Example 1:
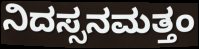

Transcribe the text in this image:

ನಿದಸ್ಸನಮತ್ತಂ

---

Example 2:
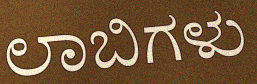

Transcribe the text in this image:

ಲಾಬಿಗಳು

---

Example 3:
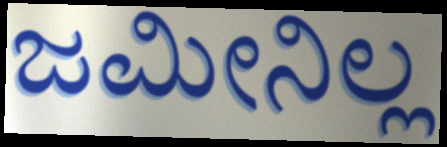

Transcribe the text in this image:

ಜಮೀನಿಲ್ಲ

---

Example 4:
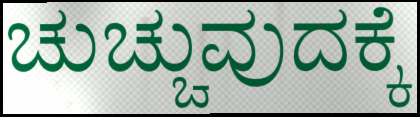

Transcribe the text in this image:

ಚುಚ್ಚುವುದಕ್ಕೆ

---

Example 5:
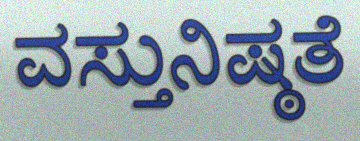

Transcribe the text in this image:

ವಸ್ತುನಿಷ್ಠತೆ